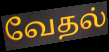
வேதல்